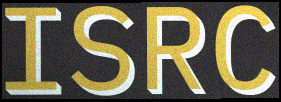
ISRC